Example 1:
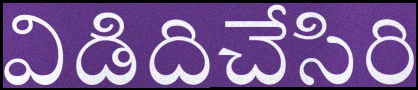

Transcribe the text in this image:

విడిదిచేసిరి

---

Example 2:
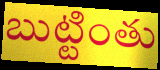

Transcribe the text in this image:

బుట్టింతు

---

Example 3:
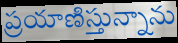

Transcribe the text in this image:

ప్రయాణిస్తున్నాను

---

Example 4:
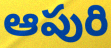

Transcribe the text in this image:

ఆపురి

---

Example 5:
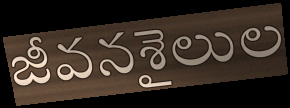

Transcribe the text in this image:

జీవనశైలుల